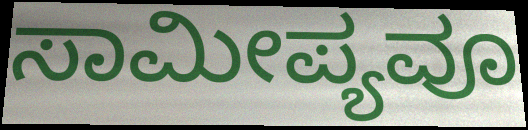
ಸಾಮೀಪ್ಯವೂ